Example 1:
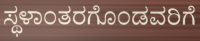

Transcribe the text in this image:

ಸ್ಥಳಾಂತರಗೊಂಡವರಿಗೆ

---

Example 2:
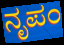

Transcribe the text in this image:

ನೃಪಂ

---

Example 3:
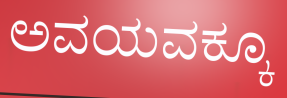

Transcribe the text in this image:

ಅವಯವಕ್ಕೂ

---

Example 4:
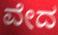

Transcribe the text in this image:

ವೇದ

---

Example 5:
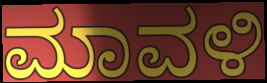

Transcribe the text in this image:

ಮಾವಳಿ